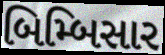
બિમ્બિસાર